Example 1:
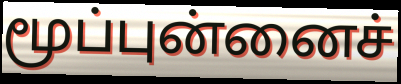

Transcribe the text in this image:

மூப்புன்னைச்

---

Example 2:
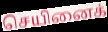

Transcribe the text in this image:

செயினைக்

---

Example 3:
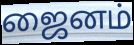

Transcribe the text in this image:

ஜைனம்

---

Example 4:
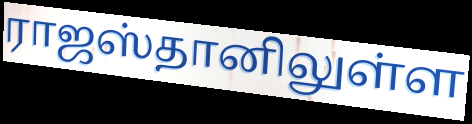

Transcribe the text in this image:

ராஜஸ்தானிலுள்ள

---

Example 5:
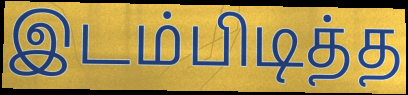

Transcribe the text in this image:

இடம்பிடித்த